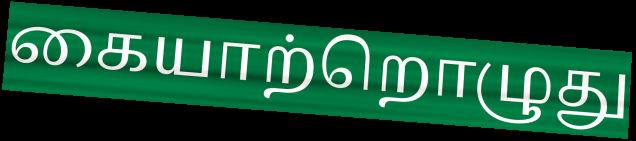
கையாற்றொழுது